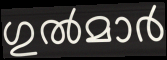
ഗുൽമാർ